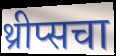
थ्रीप्सचा